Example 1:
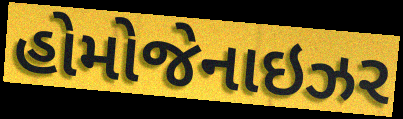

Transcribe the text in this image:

હોમોજેનાઇઝર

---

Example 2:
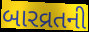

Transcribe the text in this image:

બારવ્રતની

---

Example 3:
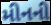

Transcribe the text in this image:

મીનની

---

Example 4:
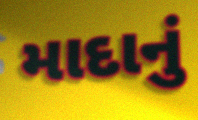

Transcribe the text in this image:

માદાનું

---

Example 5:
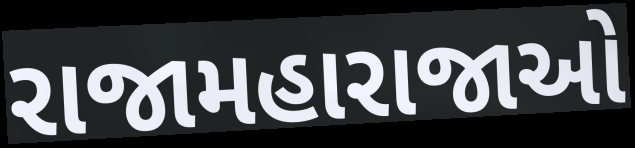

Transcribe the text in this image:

રાજામહારાજાઓ